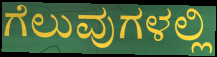
ಗೆಲುವುಗಳಲ್ಲಿ